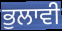
ਭੁਲਾਵੀ